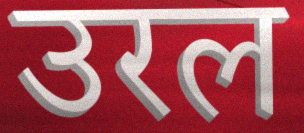
उरल